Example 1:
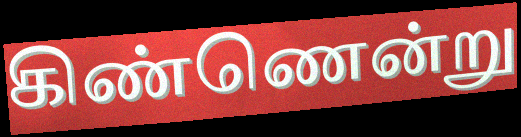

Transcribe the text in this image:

கிண்ணென்று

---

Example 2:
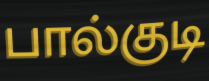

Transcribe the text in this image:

பால்குடி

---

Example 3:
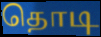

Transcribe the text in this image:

தொடி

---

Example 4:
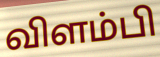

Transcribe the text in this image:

விளம்பி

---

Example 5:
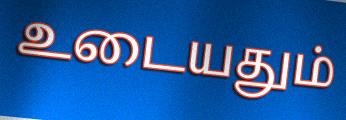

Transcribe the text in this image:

உடையதும்